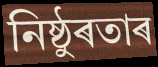
নিষ্ঠুৰতাৰ